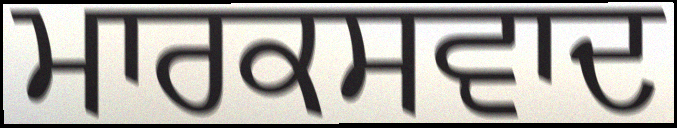
ਮਾਰਕਸਵਾਦ